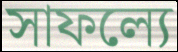
সাফল্যে